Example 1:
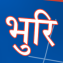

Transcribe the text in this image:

भुरि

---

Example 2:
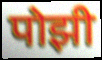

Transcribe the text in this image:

पोझी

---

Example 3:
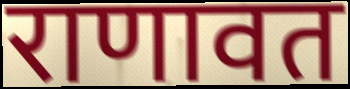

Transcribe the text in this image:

राणावत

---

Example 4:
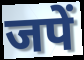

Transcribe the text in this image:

जपें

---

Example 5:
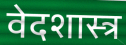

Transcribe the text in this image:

वेदशास्त्र